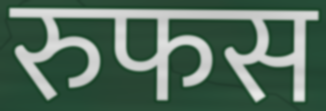
रुफस